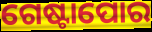
ଗେଷ୍ଟାପୋର